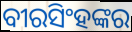
ବୀରସିଂହଙ୍କର